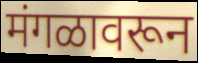
मंगळावरून